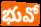
భువో